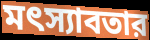
মৎস্যাবতার